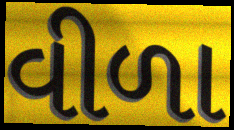
વીળા